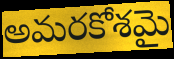
అమరకోశమై